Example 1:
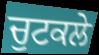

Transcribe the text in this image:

ਚੁਟਕਲੇ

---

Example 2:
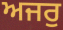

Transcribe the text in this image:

ਅਜਰੁ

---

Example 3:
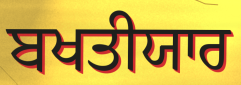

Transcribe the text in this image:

ਬਖਤੀਯਾਰ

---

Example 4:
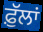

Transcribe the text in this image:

ਫ਼ੁੱਲਾਂ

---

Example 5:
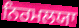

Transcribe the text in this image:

ਨਿਰਮਲਯਾ